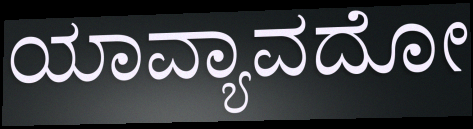
ಯಾವ್ಯಾವದೋ